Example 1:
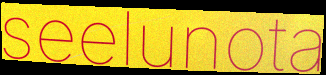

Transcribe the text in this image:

seelunota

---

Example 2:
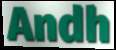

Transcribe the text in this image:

Andh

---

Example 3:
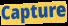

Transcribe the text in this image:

Capture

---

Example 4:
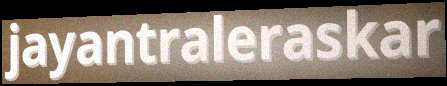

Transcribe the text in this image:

jayantraleraskar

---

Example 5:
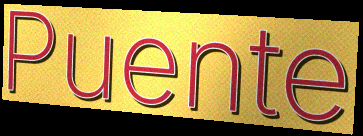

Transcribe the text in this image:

Puente